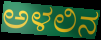
ಅಳಲಿನ